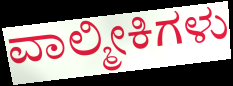
ವಾಲ್ಮೀಕಿಗಳು